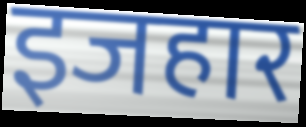
इजहार